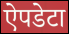
ऐपडेटा